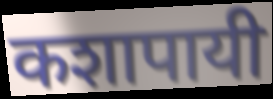
कशापायी